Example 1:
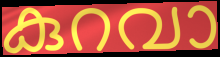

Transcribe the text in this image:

കുറവാ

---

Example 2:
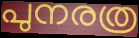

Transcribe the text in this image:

പുനരത്ര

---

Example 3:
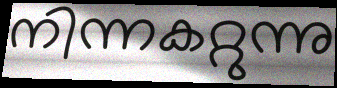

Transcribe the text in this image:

നിന്നകറ്റുന്നു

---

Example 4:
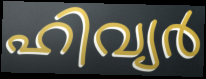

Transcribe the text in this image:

ഹിവ്യർ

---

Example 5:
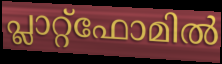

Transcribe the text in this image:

പ്ലാറ്റ്ഫോമിൽ